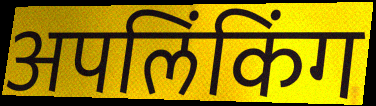
अपलिंकिंग